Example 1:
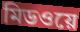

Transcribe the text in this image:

মিডওয়ে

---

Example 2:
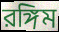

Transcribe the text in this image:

রঙ্গিম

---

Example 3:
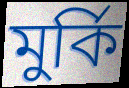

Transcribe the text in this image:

মুর্কি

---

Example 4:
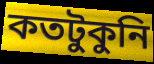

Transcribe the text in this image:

কতটুকুনি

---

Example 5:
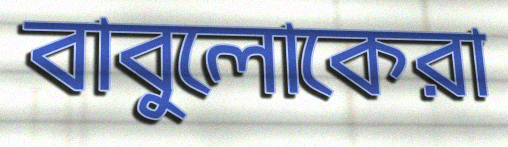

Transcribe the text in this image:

বাবুলোকেরা